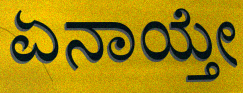
ಏನಾಯ್ತೇ